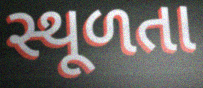
સ્થૂળતા